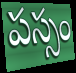
పస్సం